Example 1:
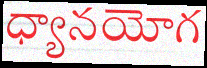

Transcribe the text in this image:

ధ్యానయోగ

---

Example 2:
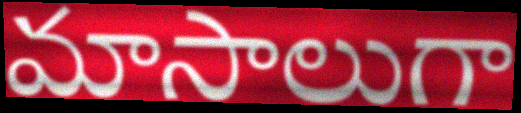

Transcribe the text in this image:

మాసాలుగా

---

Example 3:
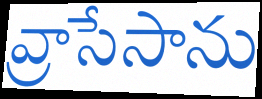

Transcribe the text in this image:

వ్రాసేసాను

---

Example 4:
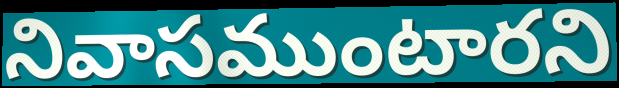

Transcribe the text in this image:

నివాసముంటారని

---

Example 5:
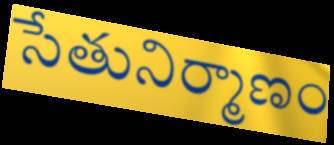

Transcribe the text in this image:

సేతునిర్మాణం